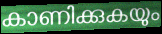
കാണിക്കുകയും